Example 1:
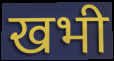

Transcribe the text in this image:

खभी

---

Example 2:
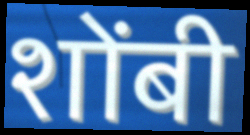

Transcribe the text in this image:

शोंबी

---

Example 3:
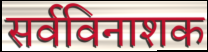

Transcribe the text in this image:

सर्वविनाशक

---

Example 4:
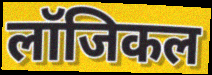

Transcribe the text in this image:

लॉजिकल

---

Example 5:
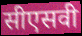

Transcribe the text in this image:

सीएसवी